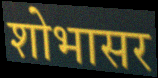
शोभासर